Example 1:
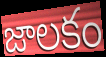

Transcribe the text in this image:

జాలకం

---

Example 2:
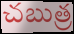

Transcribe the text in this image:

చబుత్ర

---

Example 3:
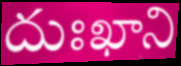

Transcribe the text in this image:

దుఃఖాని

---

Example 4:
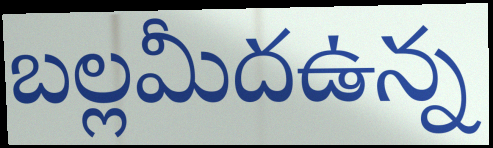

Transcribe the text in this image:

బల్లమీదఉన్న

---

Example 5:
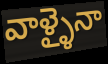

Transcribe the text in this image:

వాళ్ళైనా